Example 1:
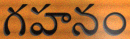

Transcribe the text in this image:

గహనం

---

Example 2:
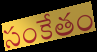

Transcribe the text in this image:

సంకేతం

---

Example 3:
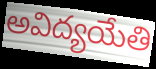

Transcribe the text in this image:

అవిద్యయేతి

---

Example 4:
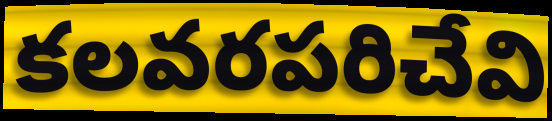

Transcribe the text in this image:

కలవరపరిచేవి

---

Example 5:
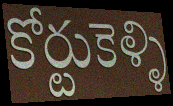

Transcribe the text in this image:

కోర్టుకెళ్ళి